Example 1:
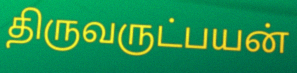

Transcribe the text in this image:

திருவருட்பயன்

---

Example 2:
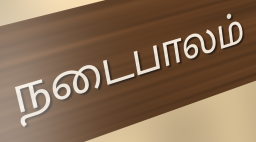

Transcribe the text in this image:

நடைபாலம்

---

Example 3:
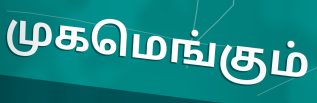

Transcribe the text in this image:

முகமெங்கும்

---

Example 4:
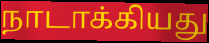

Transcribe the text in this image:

நாடாக்கியது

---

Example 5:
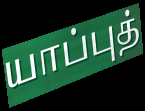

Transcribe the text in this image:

யாப்புத்